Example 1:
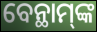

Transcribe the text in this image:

ବେନ୍ଥାମ୍‌ଙ୍କ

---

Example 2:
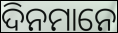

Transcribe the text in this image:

ଦିନମାନେ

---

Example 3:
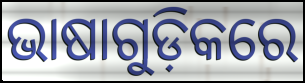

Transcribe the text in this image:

ଭାଷାଗୁଡ଼ିକରେ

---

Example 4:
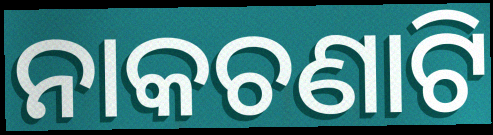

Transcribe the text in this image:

ନାକଚଣାଟି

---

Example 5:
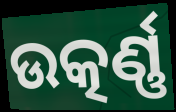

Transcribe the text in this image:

ଉତ୍କର୍ଣ୍ଣ